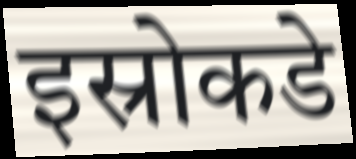
इस्रोकडे